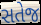
સતેજ